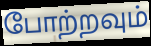
போற்றவும்